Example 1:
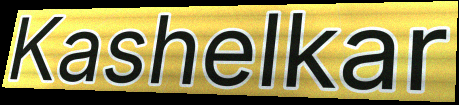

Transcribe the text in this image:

Kashelkar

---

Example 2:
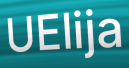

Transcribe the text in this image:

UElija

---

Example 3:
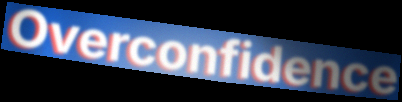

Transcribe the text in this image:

Overconfidence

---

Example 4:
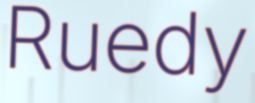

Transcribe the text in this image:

Ruedy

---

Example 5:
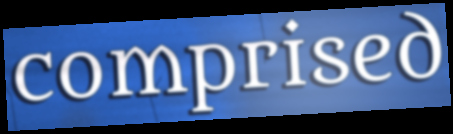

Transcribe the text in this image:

comprised